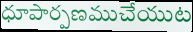
ధూపార్పణముచేయుట